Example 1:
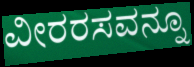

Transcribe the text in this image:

ವೀರರಸವನ್ನೂ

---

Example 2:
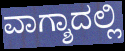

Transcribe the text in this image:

ವಾಗ್ಶಾದಲ್ಲಿ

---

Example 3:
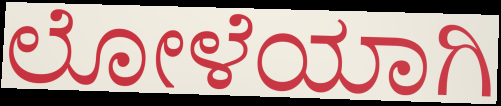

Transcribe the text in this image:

ಲೋಳೆಯಾಗಿ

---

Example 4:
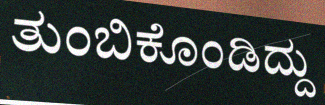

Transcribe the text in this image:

ತುಂಬಿಕೊಂಡಿದ್ದು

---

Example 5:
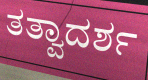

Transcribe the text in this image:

ತತ್ವಾದರ್ಶ